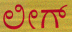
ಲೀಗ್